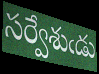
సర్వేశుఁడు